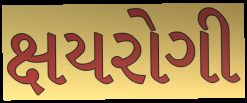
ક્ષયરોગી